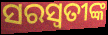
ସରସ୍ବତୀଙ୍କ